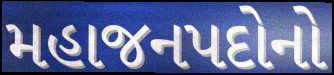
મહાજનપદોનો